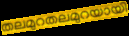
തലമുറതലമുറയായി